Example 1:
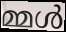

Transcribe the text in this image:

മ്മൾ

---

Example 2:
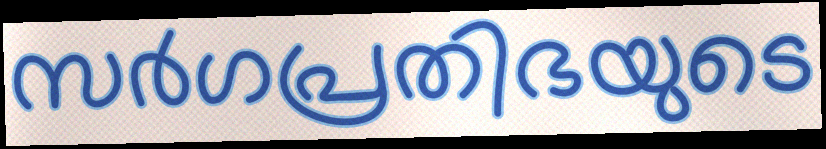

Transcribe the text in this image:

സർഗപ്രതിഭയുടെ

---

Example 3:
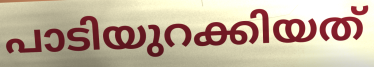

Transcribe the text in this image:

പാടിയുറക്കിയത്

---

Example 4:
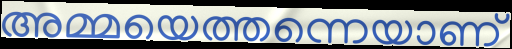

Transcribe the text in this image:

അമ്മയെത്തന്നെയാണ്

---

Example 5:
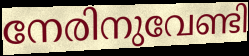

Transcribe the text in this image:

നേരിനുവേണ്ടി